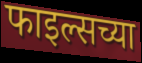
फाइल्सच्या